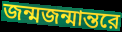
জন্মজন্মান্তরে